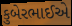
કુબેરભાઈએ